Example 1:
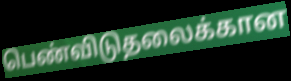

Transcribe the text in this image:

பெண்விடுதலைக்கான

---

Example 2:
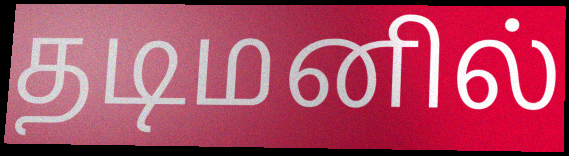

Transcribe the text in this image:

தடிமனில்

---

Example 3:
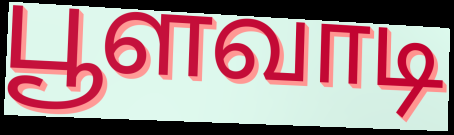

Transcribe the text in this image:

பூளவாடி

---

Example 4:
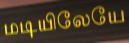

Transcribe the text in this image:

மடியிலேயே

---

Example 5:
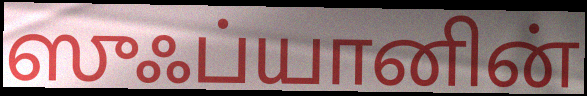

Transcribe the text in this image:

ஸுஃப்யானின்